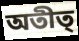
অতীত্